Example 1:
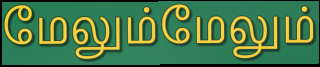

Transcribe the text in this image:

மேலும்மேலும்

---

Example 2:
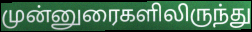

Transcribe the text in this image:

முன்னுரைகளிலிருந்து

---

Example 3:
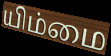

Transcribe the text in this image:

யிம்மை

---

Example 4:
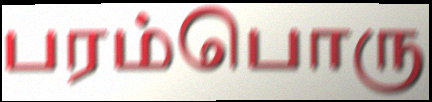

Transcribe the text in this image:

பரம்பொரு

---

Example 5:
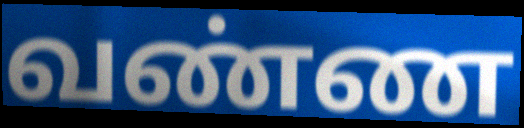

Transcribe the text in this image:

வண்ண